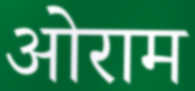
ओराम